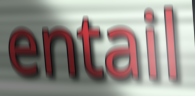
entail